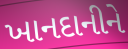
ખાનદાનીને